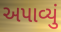
અપાવ્યું